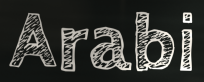
Arabi